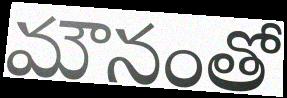
మౌనంతో